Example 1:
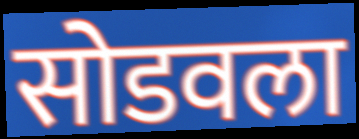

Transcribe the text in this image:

सोडवला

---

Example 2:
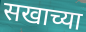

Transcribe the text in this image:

सखाच्या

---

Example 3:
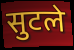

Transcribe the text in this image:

सुटले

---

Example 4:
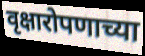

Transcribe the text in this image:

वृक्षारोपणाच्या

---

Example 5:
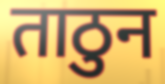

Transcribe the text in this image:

ताठुन